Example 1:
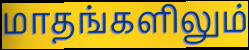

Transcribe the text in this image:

மாதங்களிலும்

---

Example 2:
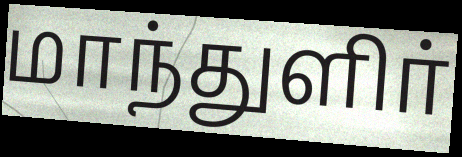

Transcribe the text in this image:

மாந்துளிர்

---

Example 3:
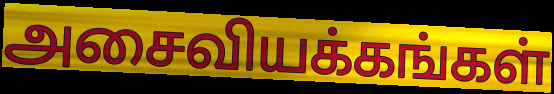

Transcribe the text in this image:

அசைவியக்கங்கள்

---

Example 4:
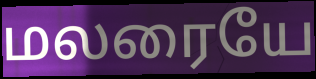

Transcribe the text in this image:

மலரையே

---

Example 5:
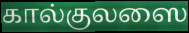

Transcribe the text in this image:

கால்குலஸை